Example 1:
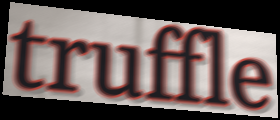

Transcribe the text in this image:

truffle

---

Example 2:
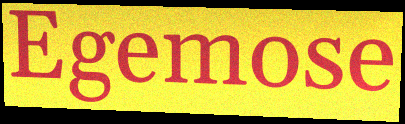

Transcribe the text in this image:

Egemose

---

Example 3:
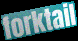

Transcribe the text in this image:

forktail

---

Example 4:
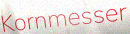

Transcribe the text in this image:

Kornmesser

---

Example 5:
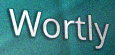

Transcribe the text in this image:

Wortly